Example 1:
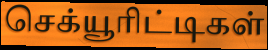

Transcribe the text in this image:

செக்யூரிட்டிகள்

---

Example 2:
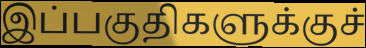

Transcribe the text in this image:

இப்பகுதிகளுக்குச்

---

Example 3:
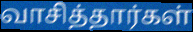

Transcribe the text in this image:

வாசித்தார்கள்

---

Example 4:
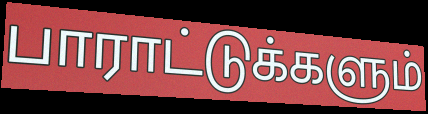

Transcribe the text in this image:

பாராட்டுக்களும்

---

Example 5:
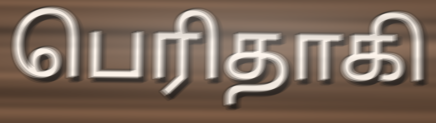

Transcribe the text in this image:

பெரிதாகி